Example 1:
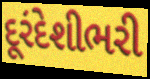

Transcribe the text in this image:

દૂરંદેશીભરી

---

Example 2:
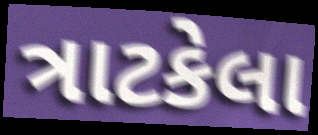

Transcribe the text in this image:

ત્રાટકેલા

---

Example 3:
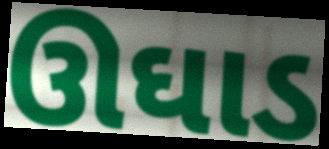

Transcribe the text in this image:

ઊઘાડ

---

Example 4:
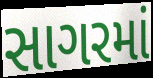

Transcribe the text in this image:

સાગરમાં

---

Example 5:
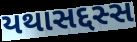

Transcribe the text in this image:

યથાસદ્દસ્સ